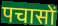
पचासों